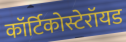
कॉर्टिकोस्टेरॉयड